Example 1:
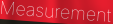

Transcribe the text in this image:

Measurement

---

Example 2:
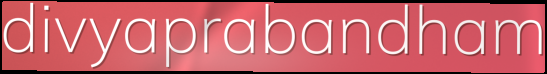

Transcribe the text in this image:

divyaprabandham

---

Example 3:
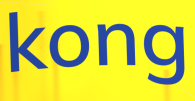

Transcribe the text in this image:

kong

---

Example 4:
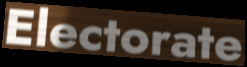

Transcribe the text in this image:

Electorate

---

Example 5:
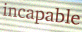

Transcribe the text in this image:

incapable